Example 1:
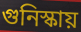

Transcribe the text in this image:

গুনিস্কায়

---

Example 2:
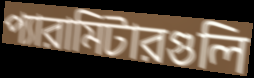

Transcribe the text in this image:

প্যারামিটারগুলি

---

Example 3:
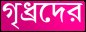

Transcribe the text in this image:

গৃধ্রদের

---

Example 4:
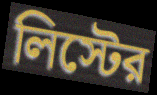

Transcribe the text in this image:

লিস্টের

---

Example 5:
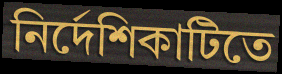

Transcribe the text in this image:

নির্দেশিকাটিতে